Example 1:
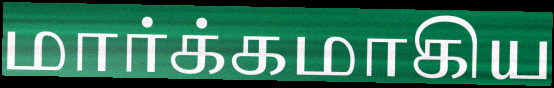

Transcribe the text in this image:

மார்க்கமாகிய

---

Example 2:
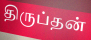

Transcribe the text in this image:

திருப்தன்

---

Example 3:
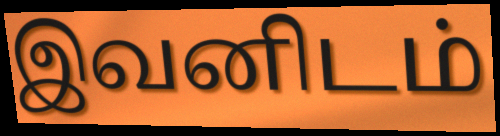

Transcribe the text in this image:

இவனிடம்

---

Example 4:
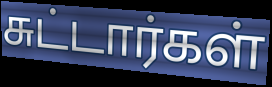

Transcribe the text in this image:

சுட்டார்கள்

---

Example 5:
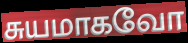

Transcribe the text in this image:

சுயமாகவோ